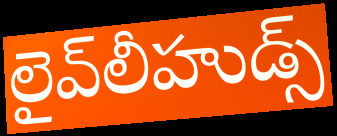
లైవ్‌లీహుడ్స్